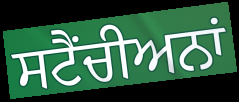
ਸਟੈਂਚੀਅਨਾਂ